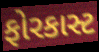
ફોરકાસ્ટ